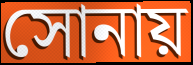
সোনায়